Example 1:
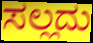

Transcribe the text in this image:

ಸಲ್ಲದು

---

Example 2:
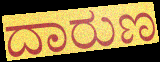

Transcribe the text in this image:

ದಾರುಣ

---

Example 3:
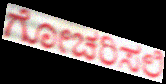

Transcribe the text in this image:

ಗೋಚರಿಸಲಿ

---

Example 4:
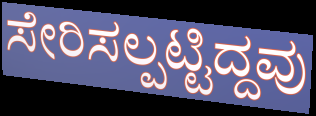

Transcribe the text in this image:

ಸೇರಿಸಲ್ಪಟ್ಟಿದ್ದವು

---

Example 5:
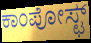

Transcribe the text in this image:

ಕಾಂಪೋಸ್ಟ್